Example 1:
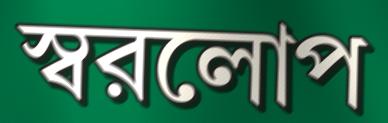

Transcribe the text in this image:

স্বরলোপ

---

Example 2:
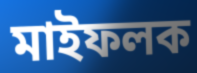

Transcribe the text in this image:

মাইফলক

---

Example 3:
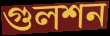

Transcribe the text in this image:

গুলশন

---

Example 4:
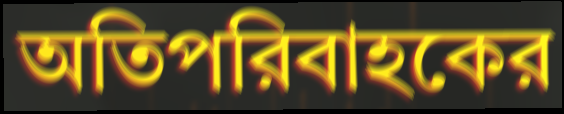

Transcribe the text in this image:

অতিপরিবাহকের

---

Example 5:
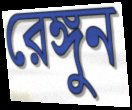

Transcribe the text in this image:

রেঙ্গুন